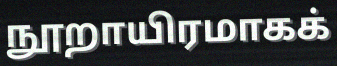
நூறாயிரமாகக்